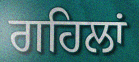
ਗਹਿਲਾਂ